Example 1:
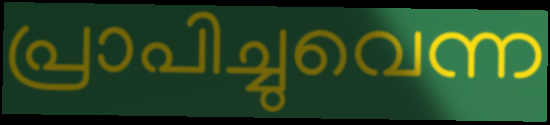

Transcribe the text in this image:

പ്രാപിച്ചുവെന്ന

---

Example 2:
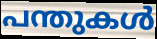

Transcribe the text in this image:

പന്തുകൾ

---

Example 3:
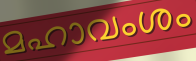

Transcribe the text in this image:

മഹാവംശം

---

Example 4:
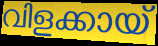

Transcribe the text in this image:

വിളക്കായ്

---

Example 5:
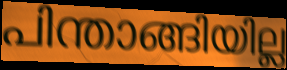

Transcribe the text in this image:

പിന്താങ്ങിയില്ല